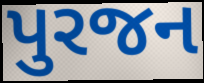
પુરજન